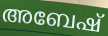
അബേഷ്